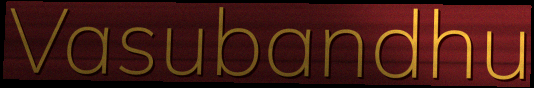
Vasubandhu